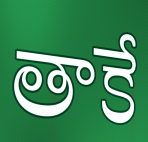
తాకే